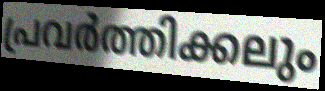
പ്രവർത്തിക്കലും